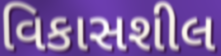
વિકાસશીલ